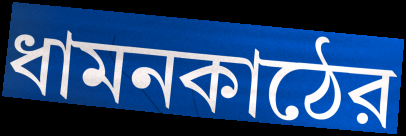
ধামনকাঠের